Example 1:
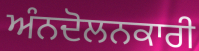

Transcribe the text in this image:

ਅੰਨਦੋਲਨਕਾਰੀ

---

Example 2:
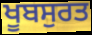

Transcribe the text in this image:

ਖੂਬਸੁਰਤ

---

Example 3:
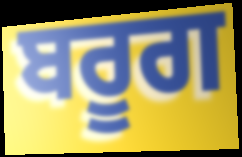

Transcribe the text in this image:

ਬਰੂਗ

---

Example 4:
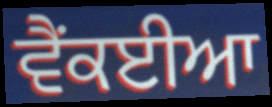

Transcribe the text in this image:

ਵੈਂਕਈਆ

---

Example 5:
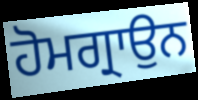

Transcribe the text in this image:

ਹੋਮਗ੍ਰਾਉਨ